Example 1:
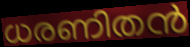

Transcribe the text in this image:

ധരണിതൻ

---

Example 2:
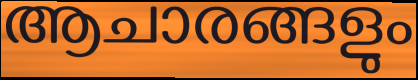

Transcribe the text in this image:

ആചാരങ്ങളും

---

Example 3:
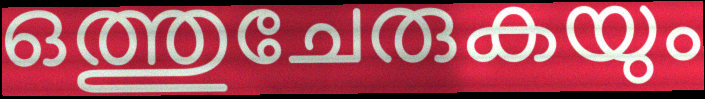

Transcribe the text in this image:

ഒത്തുചേരുകയും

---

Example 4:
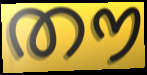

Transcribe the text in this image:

തൗ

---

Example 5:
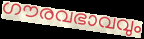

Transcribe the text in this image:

ഗൗരവഭാവവും